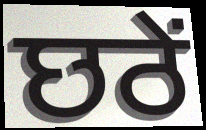
छठें